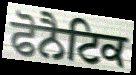
ਫੋਨੈਟਿਕ